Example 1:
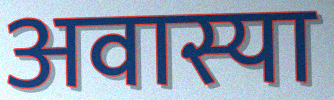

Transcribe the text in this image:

अवास्या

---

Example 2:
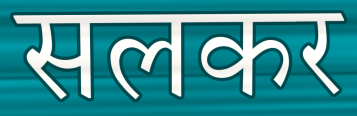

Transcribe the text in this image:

सलकर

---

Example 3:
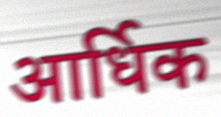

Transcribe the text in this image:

आर्धिक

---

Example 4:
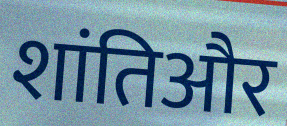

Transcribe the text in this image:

शांतिऔर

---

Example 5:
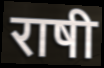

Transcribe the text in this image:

राषी